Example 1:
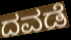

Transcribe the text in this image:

ದವಡೆ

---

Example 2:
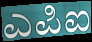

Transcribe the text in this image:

ಎಪಿಐ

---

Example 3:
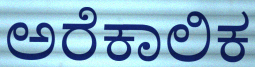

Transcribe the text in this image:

ಅರೆಕಾಲಿಕ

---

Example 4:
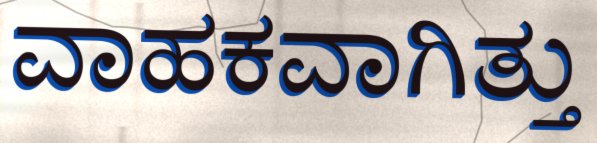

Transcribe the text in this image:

ವಾಹಕವಾಗಿತ್ತು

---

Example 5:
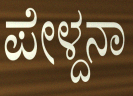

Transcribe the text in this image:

ಪೇಳ್ದನಾ